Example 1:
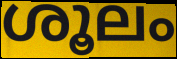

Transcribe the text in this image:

ശൂലം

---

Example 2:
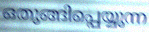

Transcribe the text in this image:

ഒതുങ്ങിപ്പെയ്യുന്ന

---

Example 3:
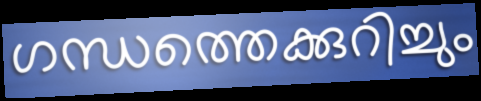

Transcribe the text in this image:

ഗന്ധത്തെക്കുറിച്ചും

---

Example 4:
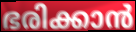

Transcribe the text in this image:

ഭരിക്കാൻ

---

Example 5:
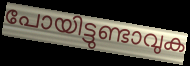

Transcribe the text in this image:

പോയിട്ടുണ്ടാവുക